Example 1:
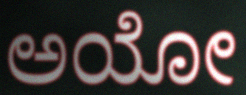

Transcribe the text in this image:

ಅಯೋ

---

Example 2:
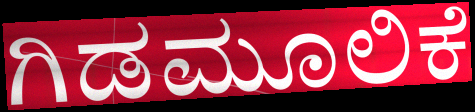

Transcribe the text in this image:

ಗಿಡಮೂಲಿಕೆ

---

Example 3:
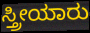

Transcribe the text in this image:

ಸ್ತ್ರೀಯಾರು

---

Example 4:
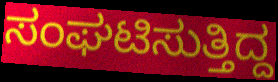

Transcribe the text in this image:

ಸಂಘಟಿಸುತ್ತಿದ್ದ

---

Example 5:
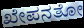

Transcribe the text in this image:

ಖೇಪನತೋ